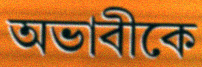
অভাবীকে